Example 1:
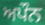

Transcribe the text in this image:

ਅਪੌਨ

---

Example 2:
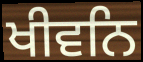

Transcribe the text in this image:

ਖੀਵਨਿ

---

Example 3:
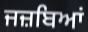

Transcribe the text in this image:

ਜਜ਼ਬਿਆਂ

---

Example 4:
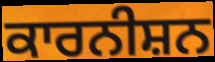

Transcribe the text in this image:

ਕਾਰਨੀਸ਼ਨ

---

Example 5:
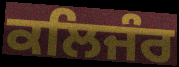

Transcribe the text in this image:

ਕਲਿਜੰਰ